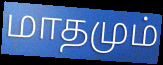
மாதமும்